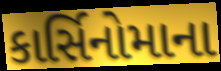
કાર્સિનોમાના